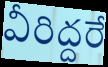
వీరిద్దరే